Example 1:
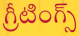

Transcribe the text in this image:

గ్రీటింగ్స్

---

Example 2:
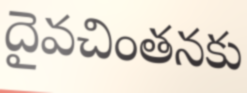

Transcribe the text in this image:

దైవచింతనకు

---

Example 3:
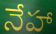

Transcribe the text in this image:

నేహా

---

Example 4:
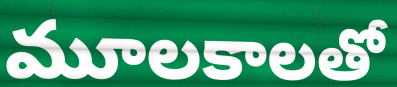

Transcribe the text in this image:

మూలకాలతో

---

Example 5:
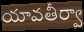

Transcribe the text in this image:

యావతీర్వా